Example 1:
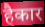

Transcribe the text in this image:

हैकार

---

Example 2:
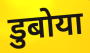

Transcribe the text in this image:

डुबोया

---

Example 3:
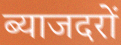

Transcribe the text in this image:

ब्याजदरों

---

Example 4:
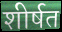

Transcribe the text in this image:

शीर्षत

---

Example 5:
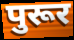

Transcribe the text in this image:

पुरूर